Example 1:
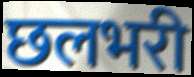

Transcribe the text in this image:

छलभरी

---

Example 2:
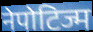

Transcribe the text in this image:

नेपोटिज्‍म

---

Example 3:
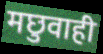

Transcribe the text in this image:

मछुवाही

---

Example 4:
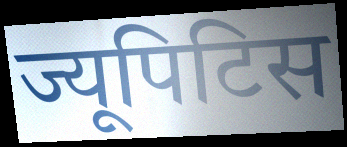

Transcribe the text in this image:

ज्यूपिटिस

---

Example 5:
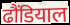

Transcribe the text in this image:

ढौंडियाल